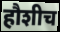
हौशीच